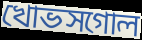
খোভসগোল